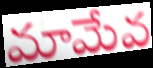
మామేవ